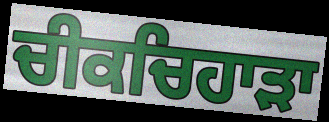
ਚੀਕਚਿਹਾੜਾ